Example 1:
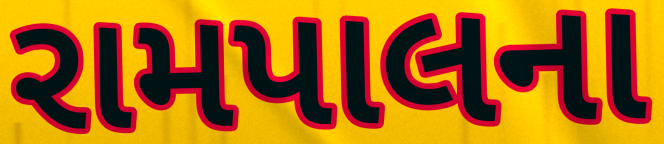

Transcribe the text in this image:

રામપાલના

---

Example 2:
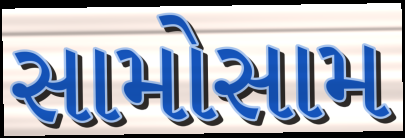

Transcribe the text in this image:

સામોસામ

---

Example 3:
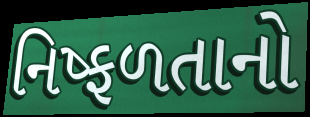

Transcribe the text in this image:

નિષ્ફળતાનો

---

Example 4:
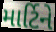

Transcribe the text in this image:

માર્ટિને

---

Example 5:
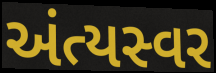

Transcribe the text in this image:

અંત્યસ્વર